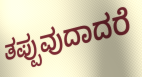
ತಪ್ಪುವುದಾದರೆ